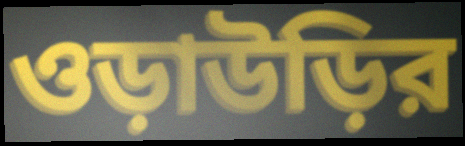
ওড়াউড়ির